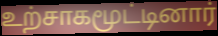
உற்சாகமூட்டினார்